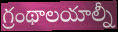
గ్రంథాలయాల్నీ